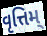
વૃત્તિમ્